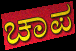
ಚಾಪ